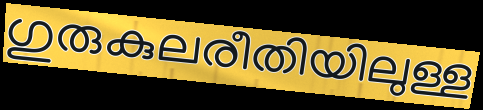
ഗുരുകുലരീതിയിലുള്ള